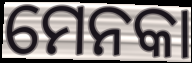
ମେନକା